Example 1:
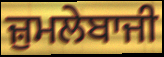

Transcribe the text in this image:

ਜ਼ੁਮਲੇਬਾਜੀ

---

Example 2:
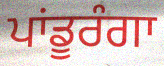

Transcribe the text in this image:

ਪਾਂਡੂਰੰਗਾ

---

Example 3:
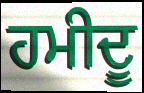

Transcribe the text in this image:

ਹਮੀਦੂ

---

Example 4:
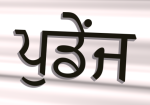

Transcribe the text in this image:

ਪੁਡੇਂਜ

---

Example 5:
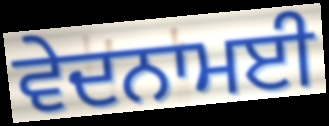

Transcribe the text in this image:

ਵੇਦਨਾਮਈ